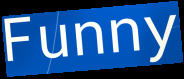
Funny